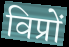
विप्रों